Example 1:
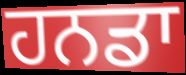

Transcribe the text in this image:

ਹਨਡਾ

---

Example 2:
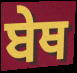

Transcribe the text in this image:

ਬੇਥ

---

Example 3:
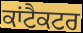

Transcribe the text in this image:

ਕਾਂਟੈਕਟਰ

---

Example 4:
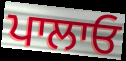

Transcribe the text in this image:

ਪਾਲਾਓ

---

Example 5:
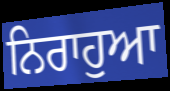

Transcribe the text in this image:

ਨਿਰਾਹੁਆ